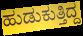
ಹುಡುಕುತ್ತಿದ್ದ